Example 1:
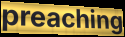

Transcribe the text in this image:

preaching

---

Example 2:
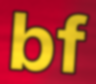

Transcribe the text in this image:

bf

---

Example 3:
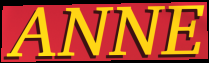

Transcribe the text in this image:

ANNE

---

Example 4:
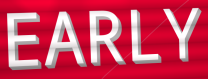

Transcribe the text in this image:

EARLY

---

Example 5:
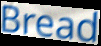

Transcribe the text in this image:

Bread